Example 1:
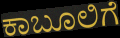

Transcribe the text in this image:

ಕಾಬೂಲಿಗೆ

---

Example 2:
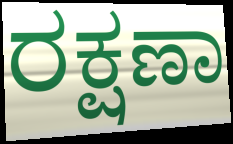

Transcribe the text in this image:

ರಕ್ಷಣಾ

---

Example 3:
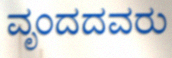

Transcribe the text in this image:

ವೃಂದದವರು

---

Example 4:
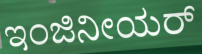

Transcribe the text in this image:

ಇಂಜಿನೀಯರ್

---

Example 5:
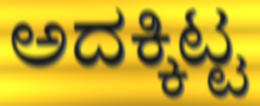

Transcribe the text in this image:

ಅದಕ್ಕಿಟ್ಟ